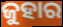
ଜୁହାର